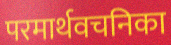
परमार्थवचनिका